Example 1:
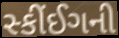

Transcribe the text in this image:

સ્કીંઈગની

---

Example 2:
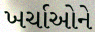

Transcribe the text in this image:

ખર્ચાઓને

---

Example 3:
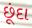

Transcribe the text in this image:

છૂંદા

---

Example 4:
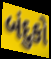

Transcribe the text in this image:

બંદુકો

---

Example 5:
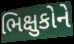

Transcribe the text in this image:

ભિક્ષુકોને